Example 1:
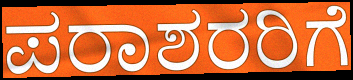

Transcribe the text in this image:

ಪರಾಶರರಿಗೆ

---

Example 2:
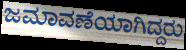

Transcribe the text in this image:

ಜಮಾವಣೆಯಾಗಿದ್ದರು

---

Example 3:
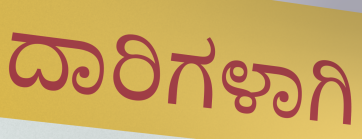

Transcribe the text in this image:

ದಾರಿಗಳಾಗಿ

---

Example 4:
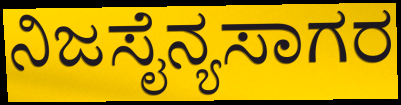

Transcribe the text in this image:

ನಿಜಸೈನ್ಯಸಾಗರ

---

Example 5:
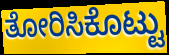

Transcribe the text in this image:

ತೋರಿಸಿಕೊಟ್ಟು